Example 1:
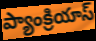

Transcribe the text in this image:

ప్యాంక్రియాస్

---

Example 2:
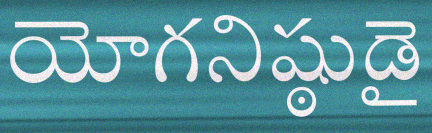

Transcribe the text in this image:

యోగనిష్ఠుడై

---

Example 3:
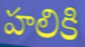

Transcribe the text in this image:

హలికి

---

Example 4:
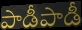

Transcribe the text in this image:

పాడీపాడీ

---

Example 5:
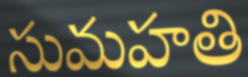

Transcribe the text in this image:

సుమహతి